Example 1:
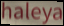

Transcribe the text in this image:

haleya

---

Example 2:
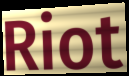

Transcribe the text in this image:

Riot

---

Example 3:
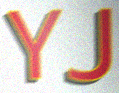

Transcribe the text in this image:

YJ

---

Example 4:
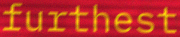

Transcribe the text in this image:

furthest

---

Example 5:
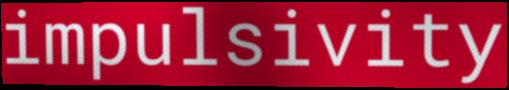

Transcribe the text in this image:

impulsivity